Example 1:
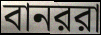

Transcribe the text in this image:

বানররা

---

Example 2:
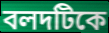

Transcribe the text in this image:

বলদটিকে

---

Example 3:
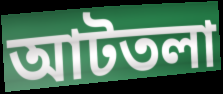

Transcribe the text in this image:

আটতলা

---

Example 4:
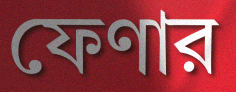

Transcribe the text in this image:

ফেণার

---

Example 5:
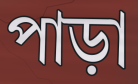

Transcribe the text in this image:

পাড়া